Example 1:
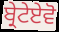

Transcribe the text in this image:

ਬ੍ਰੇਟੇਏਵੋ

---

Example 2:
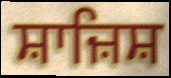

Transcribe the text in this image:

ਸ਼ਾਜ਼ਿਸ਼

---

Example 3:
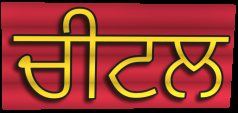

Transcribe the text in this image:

ਚੀਟਲ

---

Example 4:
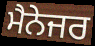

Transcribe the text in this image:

ਮੈਨੇਜਰ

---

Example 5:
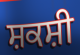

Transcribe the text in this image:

ਸ਼ਕਸ਼ੀ